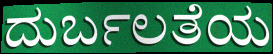
ದುರ್ಬಲತೆಯ